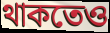
থাকতেও